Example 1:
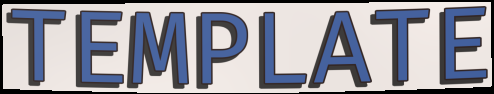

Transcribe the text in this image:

TEMPLATE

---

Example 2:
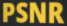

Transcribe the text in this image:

PSNR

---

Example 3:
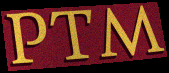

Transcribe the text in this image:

PTM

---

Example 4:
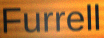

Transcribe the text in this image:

Furrell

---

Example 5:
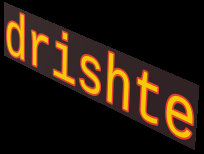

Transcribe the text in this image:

drishte